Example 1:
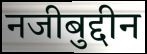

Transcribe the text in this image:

नजीबुद्दीन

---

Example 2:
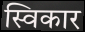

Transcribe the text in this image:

स्विकार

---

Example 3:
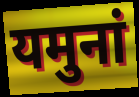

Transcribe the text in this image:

यमुनां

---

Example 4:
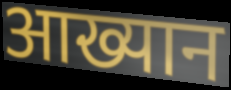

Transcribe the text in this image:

आख्यान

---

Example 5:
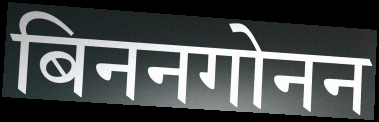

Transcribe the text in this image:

बिननगोनन